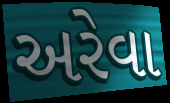
અરેવા